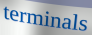
terminals